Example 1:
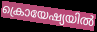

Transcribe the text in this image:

ക്രൊയേഷ്യയിൽ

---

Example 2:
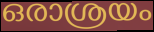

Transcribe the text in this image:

ഒരാശ്രയം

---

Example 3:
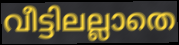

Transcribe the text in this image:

വീട്ടിലല്ലാതെ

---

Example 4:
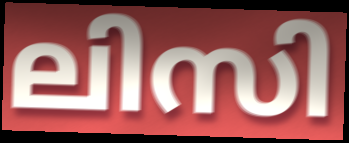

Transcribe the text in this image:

ലിസി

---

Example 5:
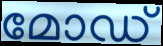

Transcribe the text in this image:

മോഡ്